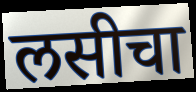
लसीचा